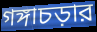
গঙ্গাচড়ার